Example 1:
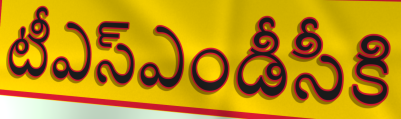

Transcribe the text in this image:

టీఎస్ఎండీసీకి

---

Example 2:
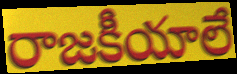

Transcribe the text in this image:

రాజకీయాలే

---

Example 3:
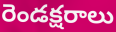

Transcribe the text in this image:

రెండక్షరాలు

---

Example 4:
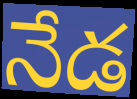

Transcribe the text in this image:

నేడ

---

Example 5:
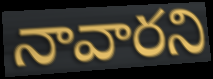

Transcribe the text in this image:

నావారని